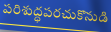
పరిశుద్ధపరచుకొనుడి